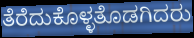
ತೆರೆದುಕೊಳ್ಳತೊಡಗಿದರು